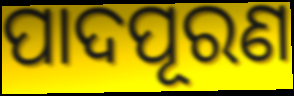
ପାଦପୂରଣ